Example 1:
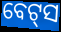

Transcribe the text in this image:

ବେଟ୍‍ସ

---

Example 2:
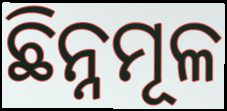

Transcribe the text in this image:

ଛିନ୍ନମୂଳ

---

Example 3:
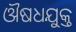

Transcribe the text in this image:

ଔଷଧଯୁକ୍ତ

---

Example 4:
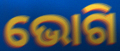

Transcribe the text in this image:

ଭୋଗି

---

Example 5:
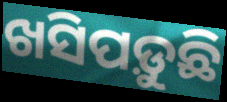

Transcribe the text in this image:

ଖସିପଡ଼ୁଛି